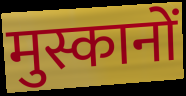
मुस्कानों